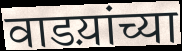
वाडय़ांच्या